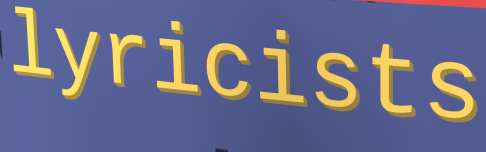
lyricists